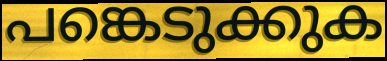
പങ്കെടുക്കുക